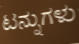
ಟನ್ನುಗಳು